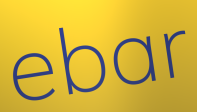
ebar